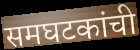
समघटकांची